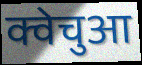
क्वेचुआ